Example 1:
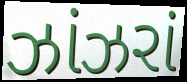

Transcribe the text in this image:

ઝાંઝરાં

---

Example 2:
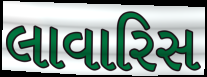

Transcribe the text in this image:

લાવારિસ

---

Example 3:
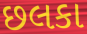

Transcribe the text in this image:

છલકા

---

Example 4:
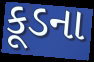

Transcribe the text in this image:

કૂડના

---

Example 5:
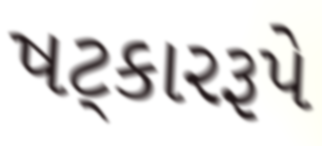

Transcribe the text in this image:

ષટ્કારરૂપે